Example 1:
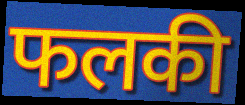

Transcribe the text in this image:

फलकी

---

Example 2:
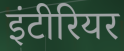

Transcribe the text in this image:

इंटीरियर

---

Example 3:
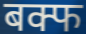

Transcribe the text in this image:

बक्फ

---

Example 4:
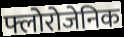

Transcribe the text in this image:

फ्लोरोजेनिक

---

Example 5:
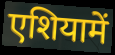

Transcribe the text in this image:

एशियामें